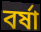
বর্ষা